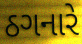
ઠગનારે